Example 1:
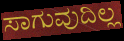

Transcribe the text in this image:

ಸಾಗುವುದಿಲ್ಲ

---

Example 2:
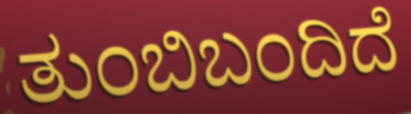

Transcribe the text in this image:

ತುಂಬಿಬಂದಿದೆ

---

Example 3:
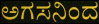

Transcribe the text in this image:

ಅಗಸನಿಂದ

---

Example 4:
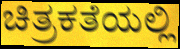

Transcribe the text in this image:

ಚಿತ್ರಕತೆಯಲ್ಲಿ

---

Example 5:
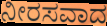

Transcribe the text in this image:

ನೀರಸವಾದ